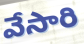
వేసారి